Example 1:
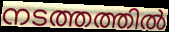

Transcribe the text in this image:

നടത്തത്തിൽ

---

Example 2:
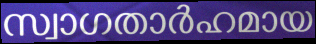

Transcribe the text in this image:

സ്വാഗതാർഹമായ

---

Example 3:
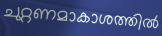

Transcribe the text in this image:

ചുറ്റണമാകാശത്തിൽ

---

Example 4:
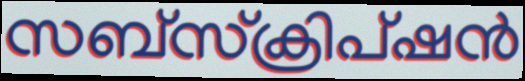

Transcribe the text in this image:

സബ്സ്ക്രിപ്ഷൻ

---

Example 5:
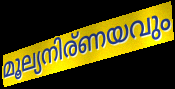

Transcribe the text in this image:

മൂല്യനിര്ണയവും